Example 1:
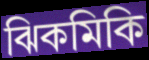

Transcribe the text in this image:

ঝিকমিকি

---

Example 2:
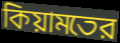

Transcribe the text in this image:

কিয়ামতের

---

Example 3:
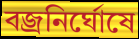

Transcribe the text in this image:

বজ্রনির্ঘোষে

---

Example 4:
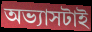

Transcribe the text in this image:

অভ্যাসটাই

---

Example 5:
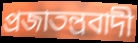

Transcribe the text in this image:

প্রজাতন্ত্রবাদী